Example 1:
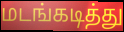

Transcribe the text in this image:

மடங்கடித்து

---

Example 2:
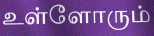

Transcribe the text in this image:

உள்ளோரும்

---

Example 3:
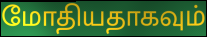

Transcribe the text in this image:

மோதியதாகவும்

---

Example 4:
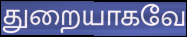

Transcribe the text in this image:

துறையாகவே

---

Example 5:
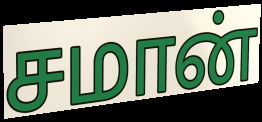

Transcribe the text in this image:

சமான்